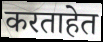
करताहेत